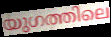
യുഗത്തിലെ